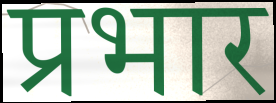
प्रभार